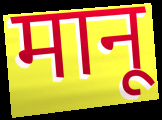
मानू